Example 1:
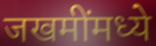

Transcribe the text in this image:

जखमींमध्ये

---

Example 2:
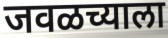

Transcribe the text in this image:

जवळच्याला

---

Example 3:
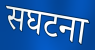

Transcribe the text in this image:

सघटना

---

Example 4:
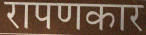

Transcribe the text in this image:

रापणकार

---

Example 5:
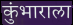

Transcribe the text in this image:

कुंभाराला